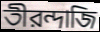
তীরন্দাজি